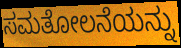
ಸಮತೋಲನೆಯನ್ನು